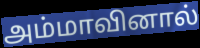
அம்மாவினால்